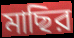
মাছির